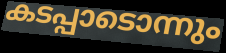
കടപ്പാടൊന്നും